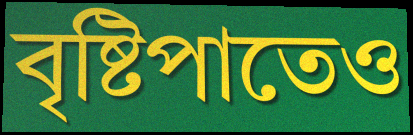
বৃষ্টিপাতেও